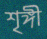
শৃঙ্গী